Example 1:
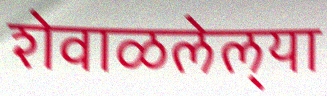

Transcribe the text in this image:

शेवाळलेल्या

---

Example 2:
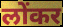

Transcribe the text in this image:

लोंकर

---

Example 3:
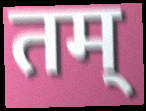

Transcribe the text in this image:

तम्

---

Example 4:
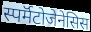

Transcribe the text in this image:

स्पर्मॅटोजेनेसिस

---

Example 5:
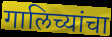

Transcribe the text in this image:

गालिच्यांचा